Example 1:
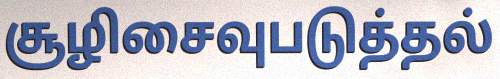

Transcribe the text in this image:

சூழிசைவுபடுத்தல்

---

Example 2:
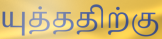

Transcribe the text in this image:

யுத்ததிற்கு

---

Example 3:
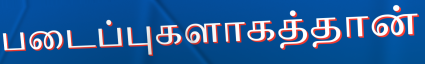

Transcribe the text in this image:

படைப்புகளாகத்தான்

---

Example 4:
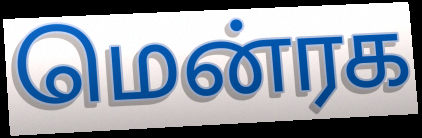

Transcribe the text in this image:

மென்ரக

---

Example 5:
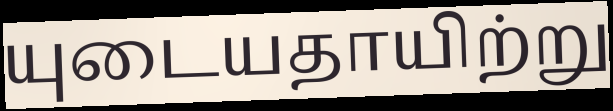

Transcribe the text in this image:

யுடையதாயிற்று